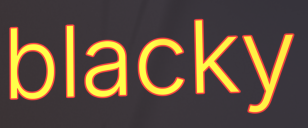
blacky